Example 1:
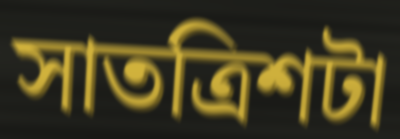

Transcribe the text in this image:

সাতত্ৰিশটা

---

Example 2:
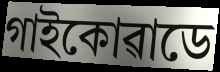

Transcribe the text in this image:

গাইকোৱাডে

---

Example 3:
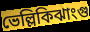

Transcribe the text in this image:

ভেল্লিকিঝাংগু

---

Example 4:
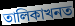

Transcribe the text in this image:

তালিকাখনত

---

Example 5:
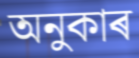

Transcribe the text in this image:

অনুকাৰ